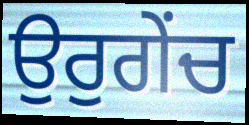
ਉਰੁਗੇਂਚ